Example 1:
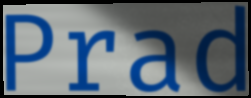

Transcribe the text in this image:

Prad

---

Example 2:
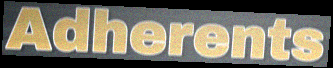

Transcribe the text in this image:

Adherents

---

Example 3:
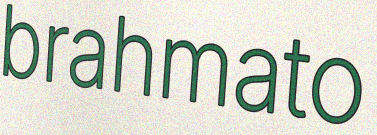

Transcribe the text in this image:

brahmato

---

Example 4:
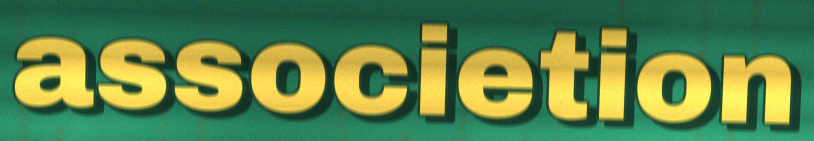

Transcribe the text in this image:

associetion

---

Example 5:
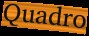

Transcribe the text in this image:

Quadro